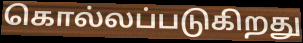
கொல்லப்படுகிறது